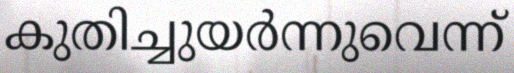
കുതിച്ചുയർന്നുവെന്ന്